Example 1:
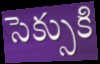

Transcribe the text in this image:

సెక్సుకి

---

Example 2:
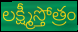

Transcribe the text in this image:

లక్ష్మీస్తోత్రం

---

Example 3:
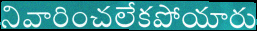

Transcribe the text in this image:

నివారించలేకపోయారు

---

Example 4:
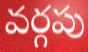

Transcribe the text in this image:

వర్గపు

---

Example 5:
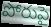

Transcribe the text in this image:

పోరుపై